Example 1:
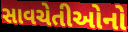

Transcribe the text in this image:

સાવચેતીઓનો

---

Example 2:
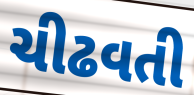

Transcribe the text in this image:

ચીઢવતી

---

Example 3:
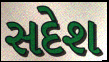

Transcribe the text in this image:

સદેશ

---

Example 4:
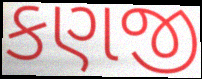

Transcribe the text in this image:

કણજી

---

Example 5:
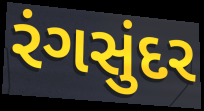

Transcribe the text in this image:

રંગસુંદર